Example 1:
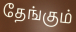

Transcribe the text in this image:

தேங்கும்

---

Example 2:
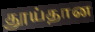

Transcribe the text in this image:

தூய்தான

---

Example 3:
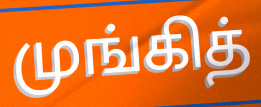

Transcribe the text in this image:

முங்கித்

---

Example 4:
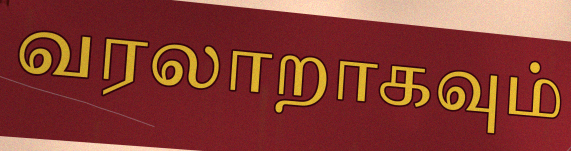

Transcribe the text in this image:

வரலாறாகவும்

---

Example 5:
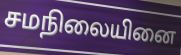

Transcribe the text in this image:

சமநிலையினை